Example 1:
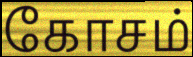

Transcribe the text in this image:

கோசம்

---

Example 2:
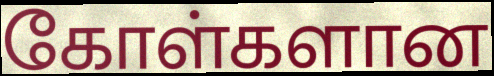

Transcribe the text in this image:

கோள்களான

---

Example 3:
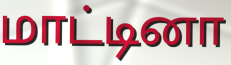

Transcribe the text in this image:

மாட்டினா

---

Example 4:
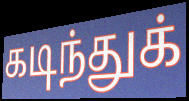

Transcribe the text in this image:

கடிந்துக்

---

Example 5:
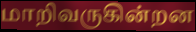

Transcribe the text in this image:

மாறிவருகின்றன